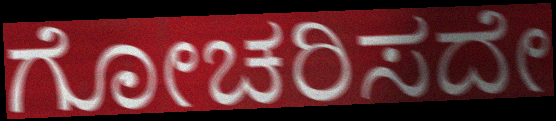
ಗೋಚರಿಸದೇ